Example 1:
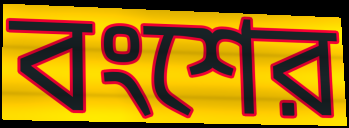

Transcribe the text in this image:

বংশের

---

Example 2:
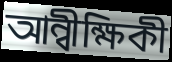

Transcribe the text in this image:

আন্বীক্ষিকী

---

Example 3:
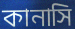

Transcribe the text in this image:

কানাসি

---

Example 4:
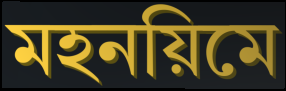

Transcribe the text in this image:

মহনয়িমে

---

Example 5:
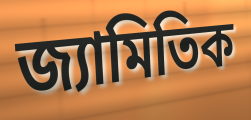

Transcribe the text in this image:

জ্যামিতিক